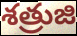
శత్రుజి